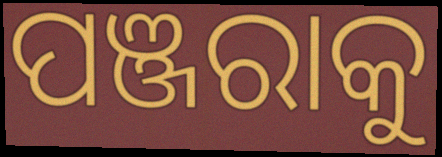
ପଞ୍ଜରାକୁ